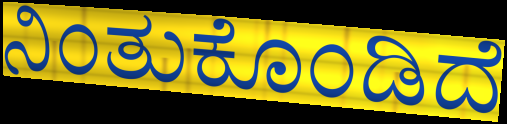
ನಿಂತುಕೊಂಡಿದೆ